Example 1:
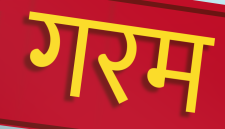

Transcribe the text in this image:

गरम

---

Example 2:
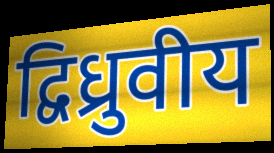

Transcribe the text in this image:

द्विध्रुवीय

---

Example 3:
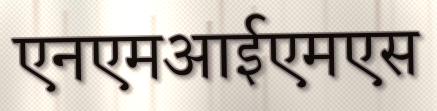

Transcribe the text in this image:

एनएमआईएमएस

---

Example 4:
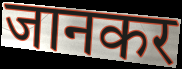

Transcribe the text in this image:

जानकर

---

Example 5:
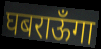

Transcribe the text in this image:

घबराऊँगा